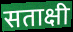
सताक्षी